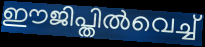
ഈജിപ്തിൽവെച്ച്